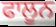
ਫਾਲੂਨ